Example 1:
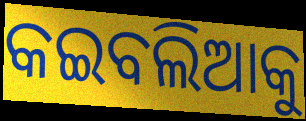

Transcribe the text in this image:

କଇବଲିଆକୁ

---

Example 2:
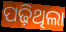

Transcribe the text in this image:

ପଢ଼ିଥିଲା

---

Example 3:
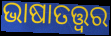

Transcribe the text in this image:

ଭାଷାତତ୍ତ୍ଵର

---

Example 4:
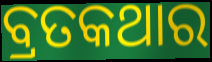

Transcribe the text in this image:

ବ୍ରତକଥାର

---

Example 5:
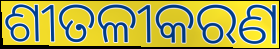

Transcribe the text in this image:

ଶୀତଳୀକରଣ